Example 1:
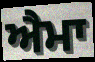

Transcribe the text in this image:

ਐਮਾ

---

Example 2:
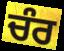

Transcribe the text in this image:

ਚੰਰ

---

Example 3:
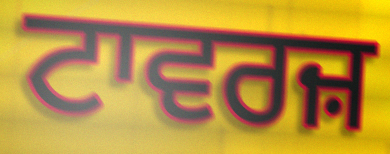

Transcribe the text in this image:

ਟਾਵਰਜ਼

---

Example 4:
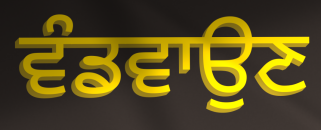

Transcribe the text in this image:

ਵੰਡਵਾਉਣ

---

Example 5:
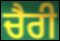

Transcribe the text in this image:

ਚੈਰੀ